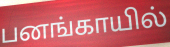
பனங்காயில்